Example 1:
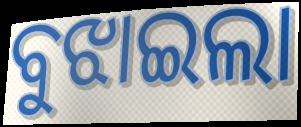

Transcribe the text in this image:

ବୁଝାଇଲା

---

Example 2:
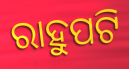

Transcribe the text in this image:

ରାହୁପଟି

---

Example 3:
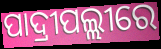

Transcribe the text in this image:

ପାଦ୍ରୀପଲ୍ଲୀରେ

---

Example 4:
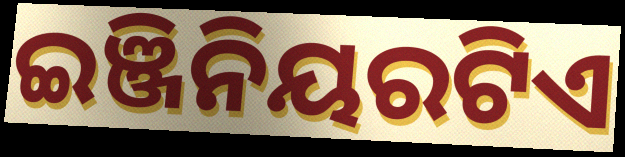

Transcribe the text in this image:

ଇଞ୍ଜିନିୟରଟିଏ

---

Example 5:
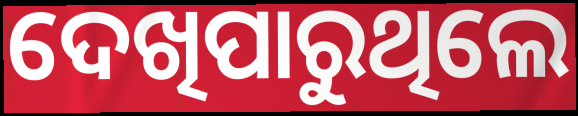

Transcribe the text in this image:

ଦେଖିପାରୁଥିଲେ